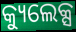
କ୍ୟୁଲେକ୍ସ